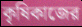
কৃষিকাজের